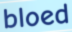
bloed